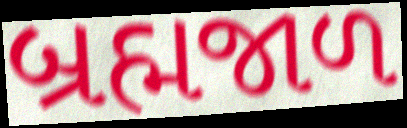
બ્રહ્મજાળ